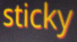
sticky